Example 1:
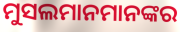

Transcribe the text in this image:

ମୁସଲମାନମାନଙ୍କର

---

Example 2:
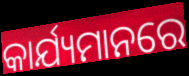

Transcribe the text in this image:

କାର୍ଯ୍ୟମାନରେ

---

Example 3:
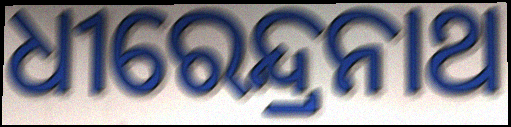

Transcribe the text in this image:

ଧୀରେନ୍ଦ୍ରନାଥ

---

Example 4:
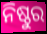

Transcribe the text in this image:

ନିଷ୍ଠୁର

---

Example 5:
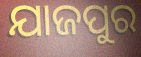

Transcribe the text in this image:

ଯାଜପୁର